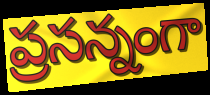
ప్రసన్నంగా